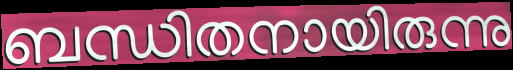
ബന്ധിതനായിരുന്നു